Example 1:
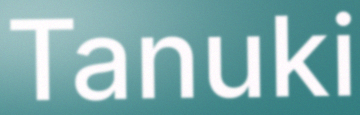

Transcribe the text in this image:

Tanuki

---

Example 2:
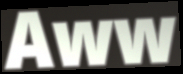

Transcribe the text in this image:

Aww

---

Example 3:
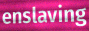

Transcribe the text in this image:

enslaving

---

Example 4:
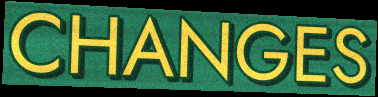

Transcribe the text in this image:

CHANGES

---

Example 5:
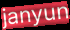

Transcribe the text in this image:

janyun